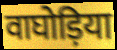
वाघोड़िया